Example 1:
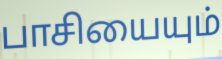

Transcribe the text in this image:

பாசியையும்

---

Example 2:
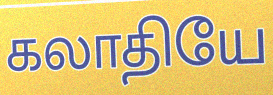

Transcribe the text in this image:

கலாதியே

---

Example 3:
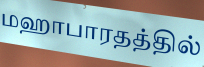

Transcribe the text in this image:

மஹாபாரதத்தில்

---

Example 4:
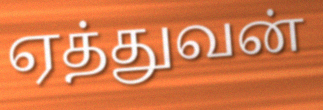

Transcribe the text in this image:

ஏத்துவன்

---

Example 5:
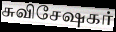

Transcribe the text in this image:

சுவிசேஷகர்